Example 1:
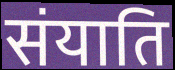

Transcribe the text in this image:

संयाति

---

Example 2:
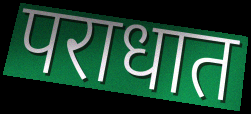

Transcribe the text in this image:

पराधात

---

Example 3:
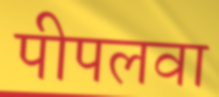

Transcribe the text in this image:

पीपलवा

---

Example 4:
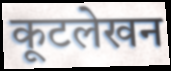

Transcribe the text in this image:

कूटलेखन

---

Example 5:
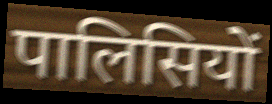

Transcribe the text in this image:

पालिसियों